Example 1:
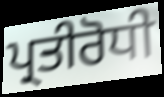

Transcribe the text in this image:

ਪ੍ਰਤੀਰੋਧੀ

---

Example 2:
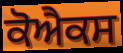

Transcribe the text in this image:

ਕੋਐਕਸ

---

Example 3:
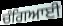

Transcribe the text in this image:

ਚੰਗਿਆਈ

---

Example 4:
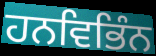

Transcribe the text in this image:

ਹਨਵਿਭਿੰਨ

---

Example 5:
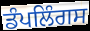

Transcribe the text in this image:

ਡੰਪਲਿੰਗਸ